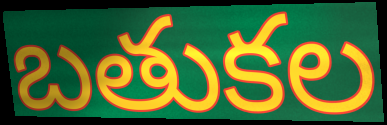
బతుకల